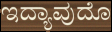
ಇದ್ಯಾವುದೊ